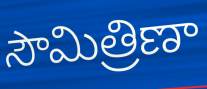
సౌమిత్రిణా